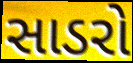
સાડરો